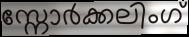
സ്നോർക്കലിംഗ്